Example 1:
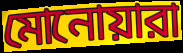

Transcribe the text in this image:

মোনোয়ারা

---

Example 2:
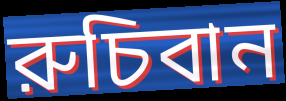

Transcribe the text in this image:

রুচিবান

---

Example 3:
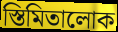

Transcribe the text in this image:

স্তিমিতালোক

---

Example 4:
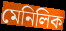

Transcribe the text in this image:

মেনিলিক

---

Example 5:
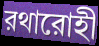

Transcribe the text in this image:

রথারোহী